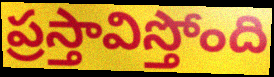
ప్రస్తావిస్తోంది